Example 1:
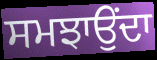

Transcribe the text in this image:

ਸਮਝਾਉਂਦਾ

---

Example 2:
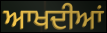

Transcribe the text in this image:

ਆਖਦੀਆਂ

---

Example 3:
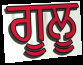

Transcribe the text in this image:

ਗੂਲੂ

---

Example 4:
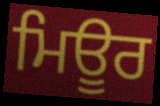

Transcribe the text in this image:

ਮਿਊਰ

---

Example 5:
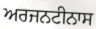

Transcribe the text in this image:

ਅਰਜਨਟੀਨਾਸ